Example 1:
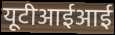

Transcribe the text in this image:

यूटीआईआई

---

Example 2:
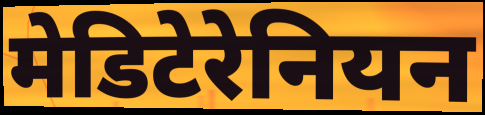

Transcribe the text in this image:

मेडिटेरेनियन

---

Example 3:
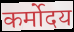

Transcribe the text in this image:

कर्मोदय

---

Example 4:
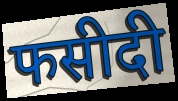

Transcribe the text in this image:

फसीदी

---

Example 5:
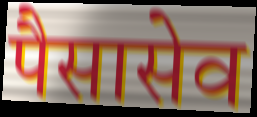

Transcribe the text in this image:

पैसासेव